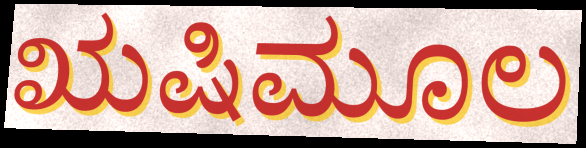
ಋಷಿಮೂಲ